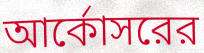
আর্কোসরের